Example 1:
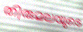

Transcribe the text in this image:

തിരുമലയുടെ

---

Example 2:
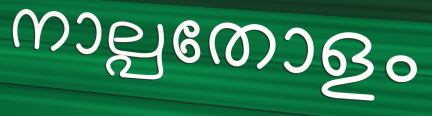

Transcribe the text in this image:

നാല്പതോളം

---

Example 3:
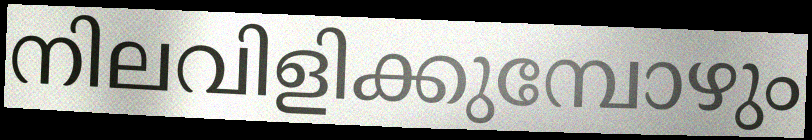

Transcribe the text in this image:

നിലവിളിക്കുമ്പോഴും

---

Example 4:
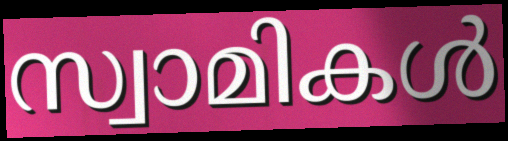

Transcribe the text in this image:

സ്വാമികൾ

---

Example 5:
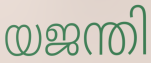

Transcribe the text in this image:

യജന്തി